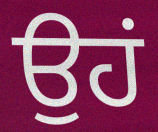
ਉਹਂ